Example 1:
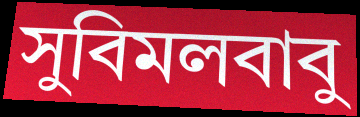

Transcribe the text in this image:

সুবিমলবাবু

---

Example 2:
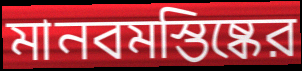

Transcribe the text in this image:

মানবমস্তিষ্কের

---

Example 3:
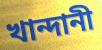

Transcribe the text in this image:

খান্দানী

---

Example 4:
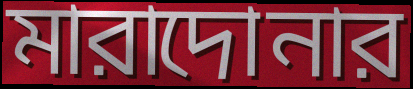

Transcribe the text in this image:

মারাদোনার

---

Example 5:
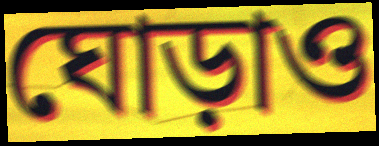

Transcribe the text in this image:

ঘোড়াও